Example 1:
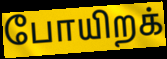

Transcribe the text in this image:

போயிறக்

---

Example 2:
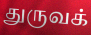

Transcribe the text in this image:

துருவக்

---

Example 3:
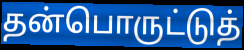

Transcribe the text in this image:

தன்பொருட்டுத்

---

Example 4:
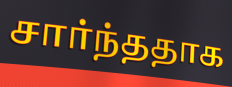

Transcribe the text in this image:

சார்ந்ததாக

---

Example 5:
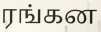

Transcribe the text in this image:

ரங்கன